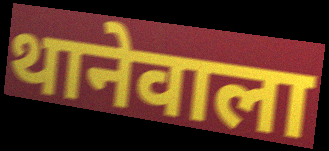
थानेवाला